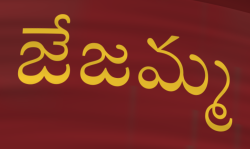
జేజమ్మ